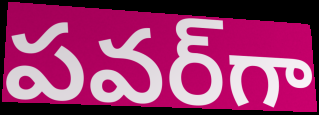
పవర్‌గా